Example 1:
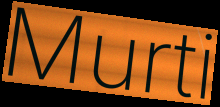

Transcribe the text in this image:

Murti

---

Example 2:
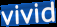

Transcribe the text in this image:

vivid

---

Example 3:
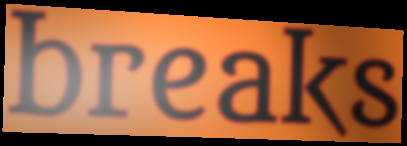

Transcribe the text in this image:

breaks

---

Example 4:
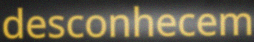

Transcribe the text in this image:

desconhecem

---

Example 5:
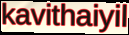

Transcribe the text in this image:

kavithaiyil